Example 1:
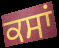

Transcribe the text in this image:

ਕਸਾਂ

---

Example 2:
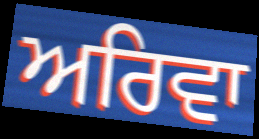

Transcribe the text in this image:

ਅਰਿਵਾ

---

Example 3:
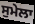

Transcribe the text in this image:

ਸੁਮੇਲਾ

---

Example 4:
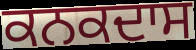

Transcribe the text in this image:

ਕਨਕਦਾਸ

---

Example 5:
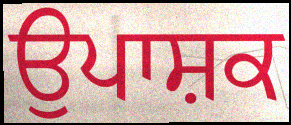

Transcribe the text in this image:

ਉਪਾਸ਼ਕ